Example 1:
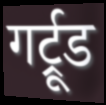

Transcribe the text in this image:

गर्ट्रूड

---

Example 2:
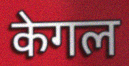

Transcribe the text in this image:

केगल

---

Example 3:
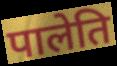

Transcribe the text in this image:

पालेति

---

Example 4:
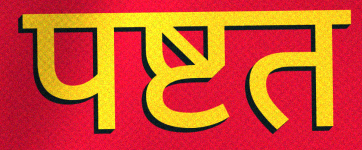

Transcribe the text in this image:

पष्टत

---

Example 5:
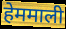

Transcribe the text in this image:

हेममाली